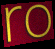
ro